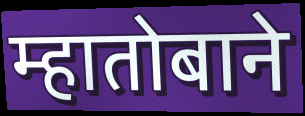
म्हातोबाने